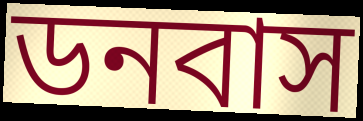
ডনবাস